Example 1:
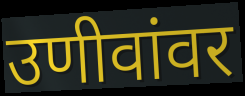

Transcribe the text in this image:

उणीवांवर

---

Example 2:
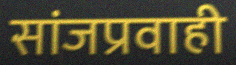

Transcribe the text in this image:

सांजप्रवाही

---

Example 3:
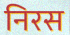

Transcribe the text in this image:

निरस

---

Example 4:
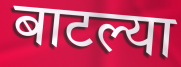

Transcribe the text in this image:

बाटल्या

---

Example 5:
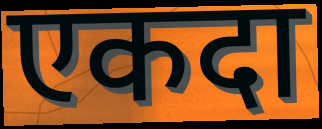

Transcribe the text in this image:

एकदा